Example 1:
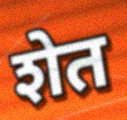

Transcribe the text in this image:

शेत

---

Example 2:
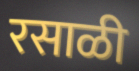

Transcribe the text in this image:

रसाळी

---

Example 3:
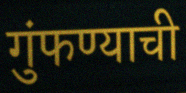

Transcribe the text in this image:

गुंफण्याची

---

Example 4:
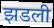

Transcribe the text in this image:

झडली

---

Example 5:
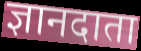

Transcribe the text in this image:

ज्ञानदाता